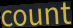
count